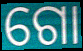
ଗୋ